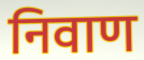
निवाण